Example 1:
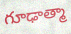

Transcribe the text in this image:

గూఢాత్మా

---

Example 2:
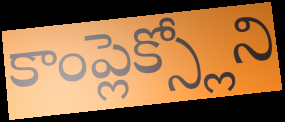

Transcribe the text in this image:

కాంప్లెక్స్లోని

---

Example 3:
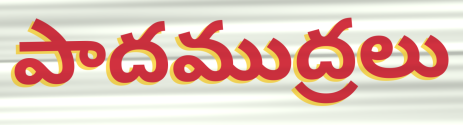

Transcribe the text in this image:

పాదముద్రలు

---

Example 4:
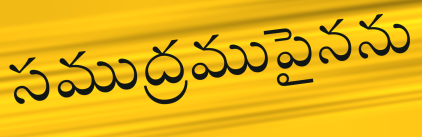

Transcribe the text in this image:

సముద్రముపైనను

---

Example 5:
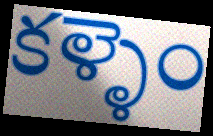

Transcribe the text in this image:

కళ్ళెం